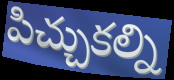
పిచ్చుకల్ని